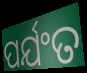
ପର୍ଯଂତ